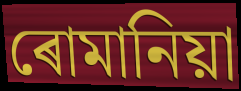
ৰোমানিয়া